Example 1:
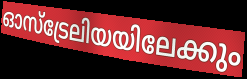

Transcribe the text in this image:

ഓസ്ട്രേലിയയിലേക്കും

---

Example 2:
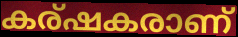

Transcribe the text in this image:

കര്ഷകരാണ്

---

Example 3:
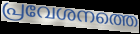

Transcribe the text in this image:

പ്രവേശനത്തെ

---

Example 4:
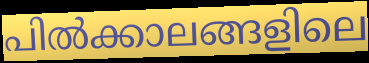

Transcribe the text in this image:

പിൽക്കാലങ്ങളിലെ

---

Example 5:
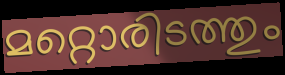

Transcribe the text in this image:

മറ്റൊരിടത്തും